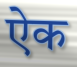
ऐक